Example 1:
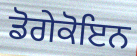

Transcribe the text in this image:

ਡੋਗੇਕੋਇਨ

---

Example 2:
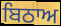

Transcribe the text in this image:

ਬਿਠਾਅ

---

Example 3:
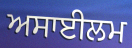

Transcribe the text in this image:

ਅਸਾਈਲਮ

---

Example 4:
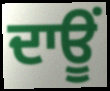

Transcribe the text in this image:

ਦਾਊਂ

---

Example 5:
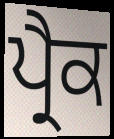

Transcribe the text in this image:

ਪ੍ਰੈਕ